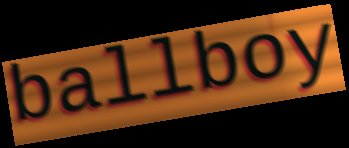
ballboy